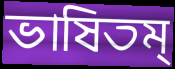
ভাষিতম্